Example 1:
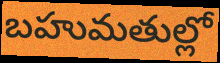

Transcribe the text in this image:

బహుమతుల్లో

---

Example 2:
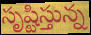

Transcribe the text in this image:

సృష్టిస్తున్న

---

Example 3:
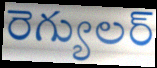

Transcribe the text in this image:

రెగ్యులర్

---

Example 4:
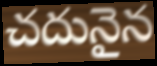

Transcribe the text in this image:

చదునైన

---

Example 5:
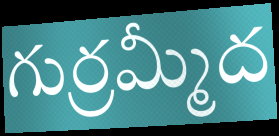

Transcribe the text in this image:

గుర్రమ్మీద